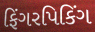
ફિંગરપિકિંગ